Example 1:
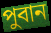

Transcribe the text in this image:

পুবান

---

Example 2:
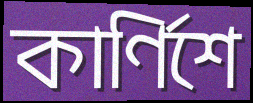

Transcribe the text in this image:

কার্ণিশে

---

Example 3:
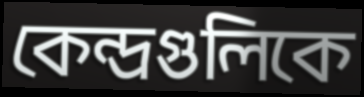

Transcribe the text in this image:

কেন্দ্রগুলিকে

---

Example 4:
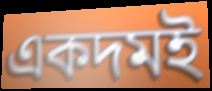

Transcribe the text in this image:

একদমই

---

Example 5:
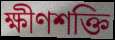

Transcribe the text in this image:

ক্ষীণশক্তি